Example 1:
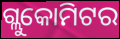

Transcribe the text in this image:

ଗ୍ଲୁକୋମିଟର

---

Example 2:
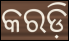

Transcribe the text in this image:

କରଡ଼ି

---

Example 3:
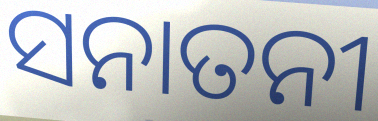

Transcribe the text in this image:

ସନାତନୀ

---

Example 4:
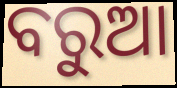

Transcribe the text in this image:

ବରୁଆ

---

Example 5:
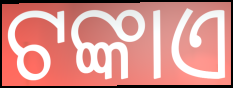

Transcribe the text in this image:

ଟଙ୍କାଏ